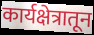
कार्यक्षेत्रातून